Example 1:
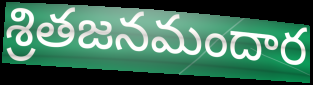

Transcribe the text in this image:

శ్రితజనమందార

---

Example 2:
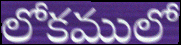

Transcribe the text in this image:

లోకములో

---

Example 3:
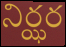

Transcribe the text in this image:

నిర్ఝర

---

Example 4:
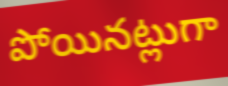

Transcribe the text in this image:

పోయినట్లుగా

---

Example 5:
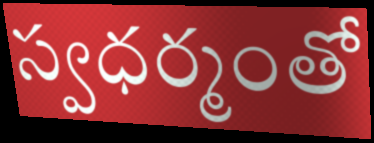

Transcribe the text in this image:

స్వధర్మంతో